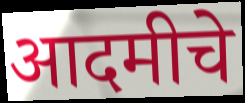
आदमीचे